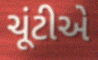
ચૂંટીએ